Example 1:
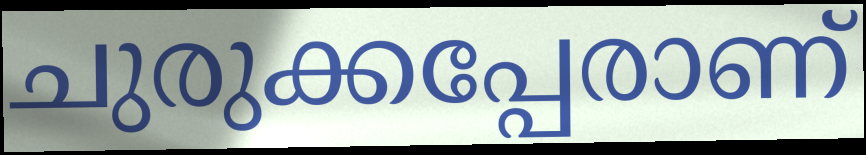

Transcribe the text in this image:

ചുരുക്കപ്പേരാണ്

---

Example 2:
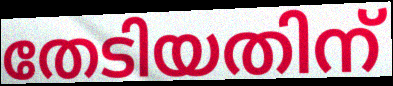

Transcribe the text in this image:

തേടിയതിന്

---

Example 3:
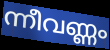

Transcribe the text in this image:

ന്നീവണ്ണം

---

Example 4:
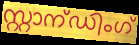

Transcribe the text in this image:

സ്റ്റാന്ഡിംഗ്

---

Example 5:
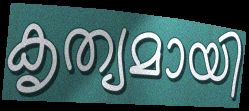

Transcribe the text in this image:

കൃത്യമായി